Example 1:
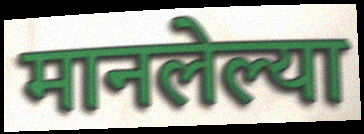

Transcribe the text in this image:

मानलेल्या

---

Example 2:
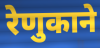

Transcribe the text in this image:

रेणुकाने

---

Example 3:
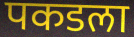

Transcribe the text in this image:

पकडला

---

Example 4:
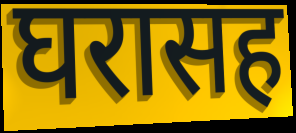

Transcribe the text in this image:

घरासह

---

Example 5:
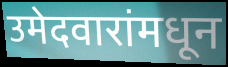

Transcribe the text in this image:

उमेदवारांमधून